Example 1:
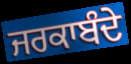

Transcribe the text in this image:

ਜਰਕਾਬੰਦੇ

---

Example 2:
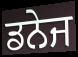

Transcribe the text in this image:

ਡਨੇਜ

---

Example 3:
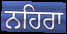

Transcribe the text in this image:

ਨਹਿਰਾ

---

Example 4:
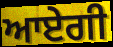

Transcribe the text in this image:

ਆਏਗੀ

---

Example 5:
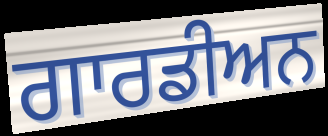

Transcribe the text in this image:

ਗਾਰਡੀਅਨ